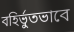
বহির্ভুতভাবে